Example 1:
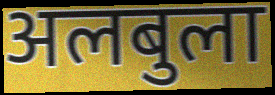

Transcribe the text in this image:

अलबुला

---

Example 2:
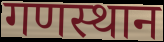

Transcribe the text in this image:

गणस्थान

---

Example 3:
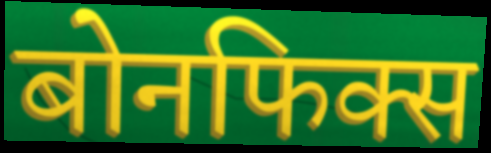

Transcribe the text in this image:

बोनफिक्स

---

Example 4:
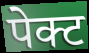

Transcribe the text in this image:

पेक्ट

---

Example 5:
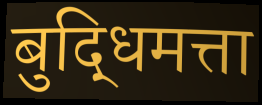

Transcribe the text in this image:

बुद्धिमत्ता